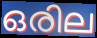
ഒരില